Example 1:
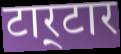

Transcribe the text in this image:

टार्टार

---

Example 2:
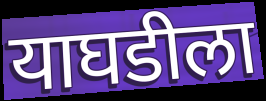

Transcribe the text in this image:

याघडीला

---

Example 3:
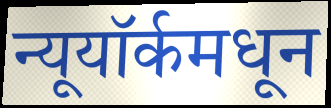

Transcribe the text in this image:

न्यूयॉर्कमधून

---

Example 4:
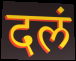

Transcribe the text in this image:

दलं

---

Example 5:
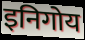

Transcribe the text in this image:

इनिगोय